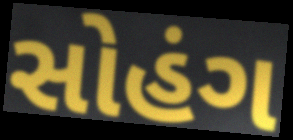
સોહંગ